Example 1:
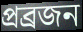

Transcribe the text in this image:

প্রব্রজন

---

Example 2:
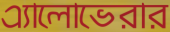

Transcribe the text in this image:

এ্যালোভেরার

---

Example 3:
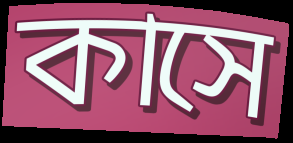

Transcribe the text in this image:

কাসে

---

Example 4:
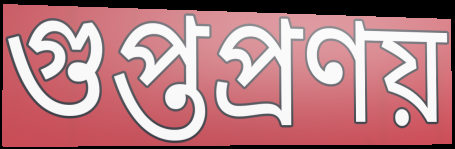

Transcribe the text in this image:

গুপ্তপ্রণয়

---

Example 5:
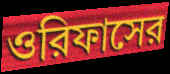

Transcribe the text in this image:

ওরিফাসের